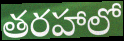
తరహాలో